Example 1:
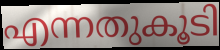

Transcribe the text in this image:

എന്നതുകൂടി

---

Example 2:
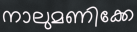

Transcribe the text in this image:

നാലുമണിക്കേ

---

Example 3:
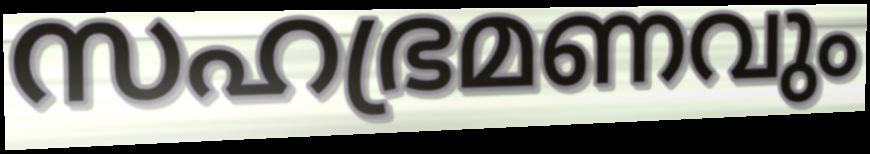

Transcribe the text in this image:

സഹഭ്രമണവും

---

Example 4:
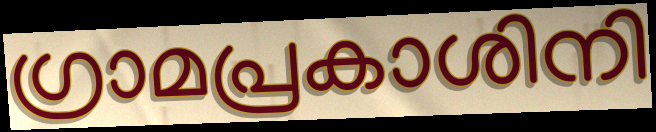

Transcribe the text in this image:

ഗ്രാമപ്രകാശിനി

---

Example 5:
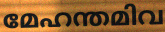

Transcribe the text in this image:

മേഹന്തമിവ